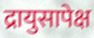
द्रायुसापेक्ष